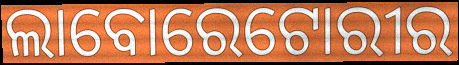
ଲାବୋରେଟୋରୀର